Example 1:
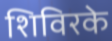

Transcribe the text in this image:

शिविरके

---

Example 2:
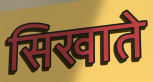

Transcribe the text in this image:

सिखाते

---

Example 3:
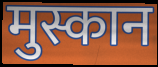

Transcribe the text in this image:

मुस्कान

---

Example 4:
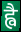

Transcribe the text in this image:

ह्वै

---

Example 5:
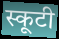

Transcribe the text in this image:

स्कूटी